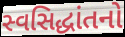
સ્વસિદ્ધાંતનો